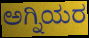
ಅಗ್ನಿಯರ